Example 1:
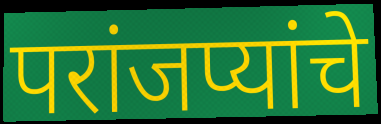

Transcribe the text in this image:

परांजप्यांचे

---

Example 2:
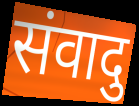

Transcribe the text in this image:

संवादु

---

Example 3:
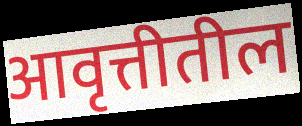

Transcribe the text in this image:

आवृत्तीतील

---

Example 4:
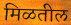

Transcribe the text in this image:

मिळतील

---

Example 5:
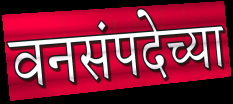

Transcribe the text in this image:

वनसंपदेच्या